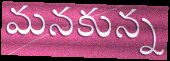
మనకున్న